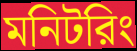
মনিটরিং